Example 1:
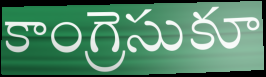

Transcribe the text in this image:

కాంగ్రెసుకూ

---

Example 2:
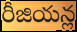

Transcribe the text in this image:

రీజియన్ల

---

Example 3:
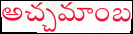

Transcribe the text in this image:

అచ్చమాంబ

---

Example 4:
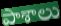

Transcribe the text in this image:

పాశాలు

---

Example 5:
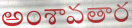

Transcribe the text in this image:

అంశావతార